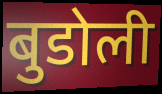
बुडोली